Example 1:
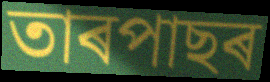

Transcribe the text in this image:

তাৰপাছৰ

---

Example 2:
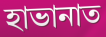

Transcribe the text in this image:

হাভানাত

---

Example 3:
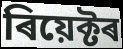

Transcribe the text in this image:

ৰিয়েক্টৰ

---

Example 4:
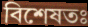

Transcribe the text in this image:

বিশেষতঃ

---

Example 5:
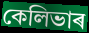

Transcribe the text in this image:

কেলিভাৰ